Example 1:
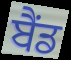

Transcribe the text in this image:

ਬੈੰਡ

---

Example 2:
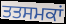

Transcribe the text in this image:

ਤਤਸਮਕਾਂ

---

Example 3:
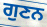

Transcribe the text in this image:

ਗੁਣਨ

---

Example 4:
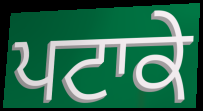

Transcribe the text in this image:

ਪਟਾਕੇ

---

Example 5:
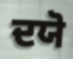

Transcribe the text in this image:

ਦਯੋ